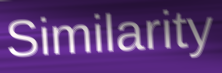
Similarity